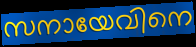
സനായേവിനെ